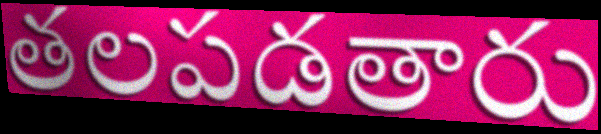
తలపడతారు